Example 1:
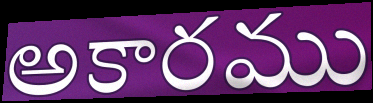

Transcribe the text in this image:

అకారము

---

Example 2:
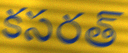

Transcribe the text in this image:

కసరత్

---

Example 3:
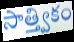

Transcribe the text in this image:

సాత్త్వికం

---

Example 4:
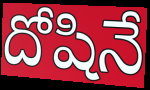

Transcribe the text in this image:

దోషినే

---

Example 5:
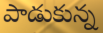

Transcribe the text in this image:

పాడుకున్న